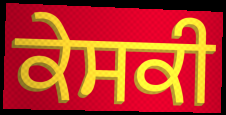
ਕੇਸਕੀ